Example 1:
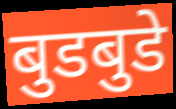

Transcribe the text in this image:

बुडबुडे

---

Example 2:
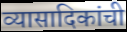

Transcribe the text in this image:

व्यासादिकांची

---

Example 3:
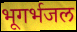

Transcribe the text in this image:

भूगर्भजल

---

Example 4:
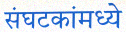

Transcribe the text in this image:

संघटकांमध्ये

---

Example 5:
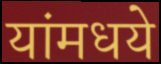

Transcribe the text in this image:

यांमधये